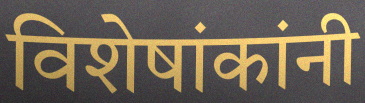
विशेषांकांनी